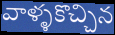
వాళ్ళకొచ్చిన